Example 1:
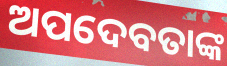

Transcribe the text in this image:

ଅପଦେବତାଙ୍କ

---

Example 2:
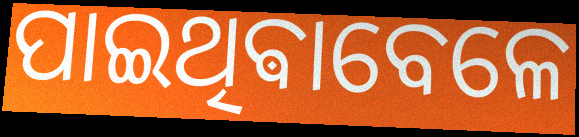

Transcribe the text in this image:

ପାଇଥିଵାବେଳେ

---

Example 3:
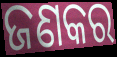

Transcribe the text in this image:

ଜଣକର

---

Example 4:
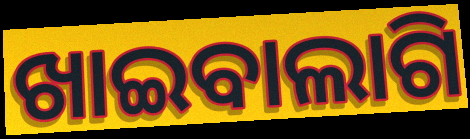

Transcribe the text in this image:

ଖାଇବାଲାଗି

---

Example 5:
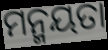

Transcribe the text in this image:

ମନ୍ମୟତା